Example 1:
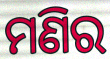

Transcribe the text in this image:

ମଣିର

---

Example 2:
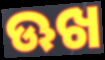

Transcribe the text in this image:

ଊଖ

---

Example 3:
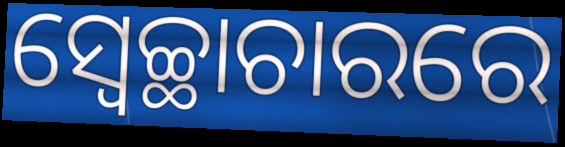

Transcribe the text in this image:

ସ୍ବେଚ୍ଛାଚାରରେ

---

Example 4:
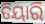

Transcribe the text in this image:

ତିୟାରି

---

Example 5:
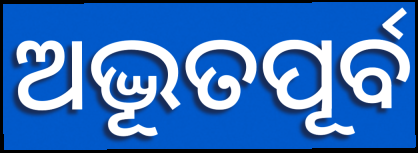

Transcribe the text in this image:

ଅଦ୍ଭୂତପୂର୍ବ